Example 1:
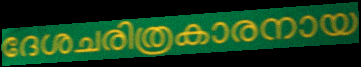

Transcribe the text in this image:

ദേശചരിത്രകാരനായ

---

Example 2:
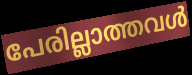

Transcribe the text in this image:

പേരില്ലാത്തവൾ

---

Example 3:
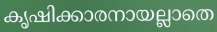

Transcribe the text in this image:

കൃഷിക്കാരനായല്ലാതെ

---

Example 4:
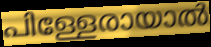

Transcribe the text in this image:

പിള്ളേരായാൽ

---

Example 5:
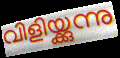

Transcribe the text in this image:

വിളിയ്ക്കുന്നു